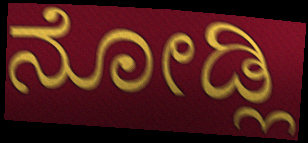
ನೋಡ್ಲಿ